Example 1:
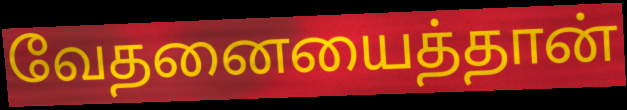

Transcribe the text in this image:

வேதனையைத்தான்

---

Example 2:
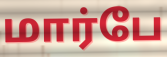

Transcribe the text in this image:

மார்பே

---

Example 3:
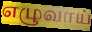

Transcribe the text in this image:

எழுவாய்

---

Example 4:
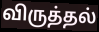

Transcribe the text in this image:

விருத்தல்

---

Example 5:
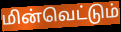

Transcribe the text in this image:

மின்வெட்டும்